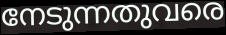
നേടുന്നതുവരെ